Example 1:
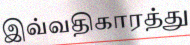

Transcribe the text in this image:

இவ்வதிகாரத்து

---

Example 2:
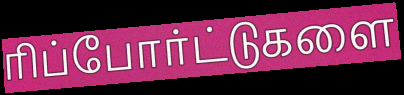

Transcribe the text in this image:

ரிப்போர்ட்டுகளை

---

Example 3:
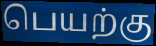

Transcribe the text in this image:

பெயற்கு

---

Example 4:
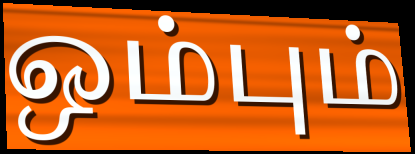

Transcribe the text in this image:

ஒம்பும்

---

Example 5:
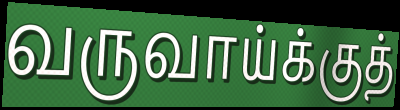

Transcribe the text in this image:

வருவாய்க்குத்